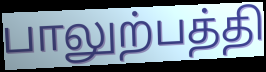
பாலுற்பத்தி